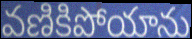
వణికిపోయాను